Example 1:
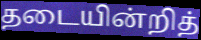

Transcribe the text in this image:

தடையின்றித்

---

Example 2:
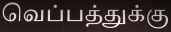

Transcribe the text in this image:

வெப்பத்துக்கு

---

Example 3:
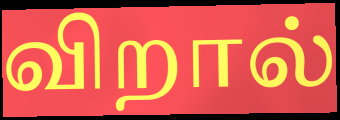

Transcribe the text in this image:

விறால்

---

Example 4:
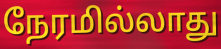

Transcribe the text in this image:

நேரமில்லாது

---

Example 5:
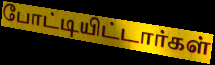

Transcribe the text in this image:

போட்டியிட்டார்கள்